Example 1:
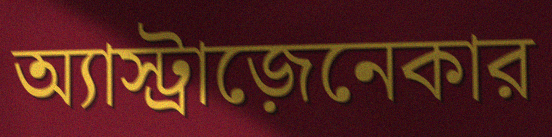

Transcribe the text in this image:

অ্যাস্ট্রাজ়েনেকার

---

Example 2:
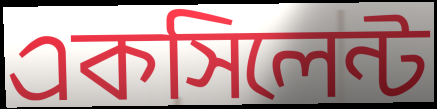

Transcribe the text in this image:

একসিলেন্ট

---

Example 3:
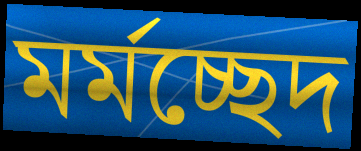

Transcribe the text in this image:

মর্মচ্ছেদ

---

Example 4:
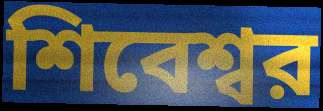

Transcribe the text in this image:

শিবেশ্বর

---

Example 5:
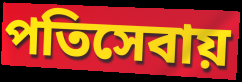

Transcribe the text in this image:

পতিসেবায়